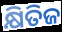
କ୍ଷିତିଜ